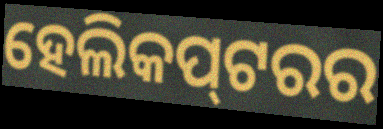
ହେଲିକପ୍‌ଟରର